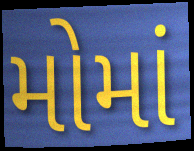
મોમાં